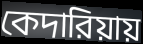
কেদারিয়ায়